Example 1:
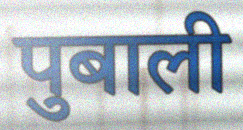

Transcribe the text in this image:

पुबाली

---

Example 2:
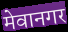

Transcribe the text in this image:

मेवानगर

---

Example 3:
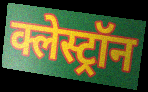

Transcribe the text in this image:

क्लेस्ट्रॉन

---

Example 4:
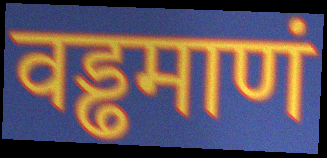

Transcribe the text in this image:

वड्ढमाणं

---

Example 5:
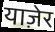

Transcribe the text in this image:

याज़ेर